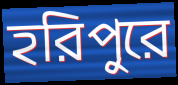
হরিপুরে